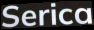
Serica